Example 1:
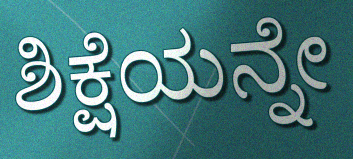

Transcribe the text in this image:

ಶಿಕ್ಷೆಯನ್ನೇ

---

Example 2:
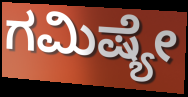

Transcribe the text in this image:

ಗಮಿಷ್ಯೇ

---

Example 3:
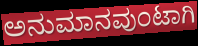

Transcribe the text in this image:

ಅನುಮಾನವುಂಟಾಗಿ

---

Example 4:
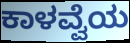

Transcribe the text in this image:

ಕಾಳವ್ವೆಯ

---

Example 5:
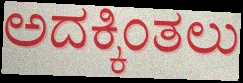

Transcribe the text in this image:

ಅದಕ್ಕಿಂತಲು